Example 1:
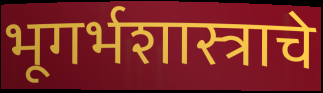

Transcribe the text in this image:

भूगर्भशास्त्राचे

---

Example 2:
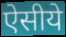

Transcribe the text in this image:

ऐसीये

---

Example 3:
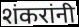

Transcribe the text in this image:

शंकरांनी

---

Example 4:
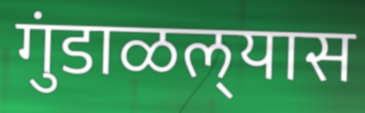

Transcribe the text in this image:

गुंडाळल्यास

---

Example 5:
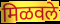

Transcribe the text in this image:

मिळवले